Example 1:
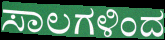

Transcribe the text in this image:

ಸಾಲಗಳಿಂದ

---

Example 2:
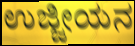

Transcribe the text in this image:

ಉಜ್ಜೀಯನ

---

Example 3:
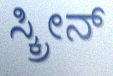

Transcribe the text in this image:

ಸ್ಕ್ರೀನ್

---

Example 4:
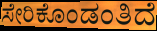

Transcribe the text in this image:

ಸೇರಿಕೊಂಡಂತಿದೆ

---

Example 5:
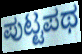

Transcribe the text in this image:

ಪುಟ್ಟಪಥ